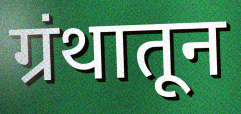
ग्रंथातून